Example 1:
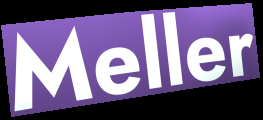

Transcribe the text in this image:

Meller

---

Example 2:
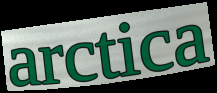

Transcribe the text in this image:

arctica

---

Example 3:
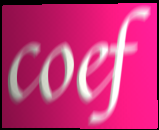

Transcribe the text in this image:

coef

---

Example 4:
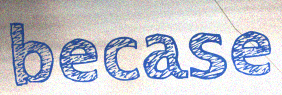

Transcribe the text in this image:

becase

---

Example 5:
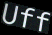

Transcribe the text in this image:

Uff